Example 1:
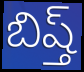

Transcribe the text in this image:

బిష్త్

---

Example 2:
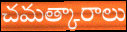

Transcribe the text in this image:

చమత్కారాలు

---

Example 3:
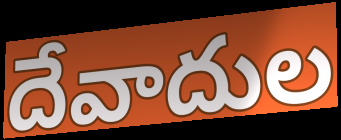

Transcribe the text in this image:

దేవాదుల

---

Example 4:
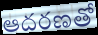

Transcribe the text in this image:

ఆదరణతో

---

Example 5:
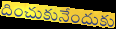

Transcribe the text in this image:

దించుకునేందుకు